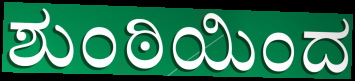
ಶುಂಠಿಯಿಂದ